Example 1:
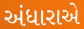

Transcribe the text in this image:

અંધારાએ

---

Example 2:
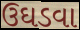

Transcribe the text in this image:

ઉઘડવા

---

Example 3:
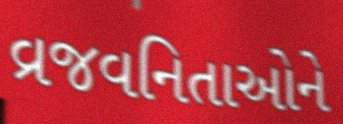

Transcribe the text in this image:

વ્રજવનિતાઓને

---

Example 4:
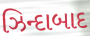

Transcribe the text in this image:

ઝિન્દાબાદ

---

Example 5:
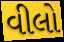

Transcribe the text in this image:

વીલો